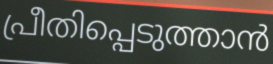
പ്രീതിപ്പെടുത്താൻ